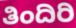
ತಿಂದಿರಿ